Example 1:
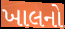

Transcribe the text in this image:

ખાલનો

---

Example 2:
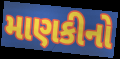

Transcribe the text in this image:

માણકીનો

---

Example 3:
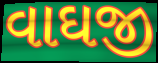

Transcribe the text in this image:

વાઘજી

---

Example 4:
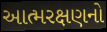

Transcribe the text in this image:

આત્મરક્ષણનો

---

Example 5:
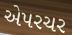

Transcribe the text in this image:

એપરચર